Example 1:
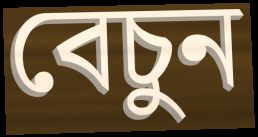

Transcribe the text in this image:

বেচুন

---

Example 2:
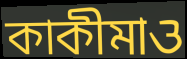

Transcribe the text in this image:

কাকীমাও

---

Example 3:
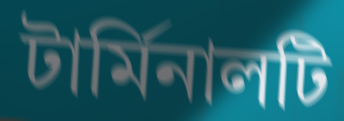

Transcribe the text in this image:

টার্মিনালটি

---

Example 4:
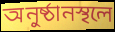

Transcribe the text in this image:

অনুষ্ঠানস্থলে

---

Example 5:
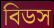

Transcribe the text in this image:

বিডস